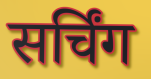
सर्चिंग